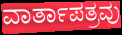
ವಾರ್ತಾಪತ್ರವು